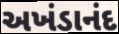
અખંડાનંદ